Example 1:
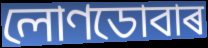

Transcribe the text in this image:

লোণডোবাৰ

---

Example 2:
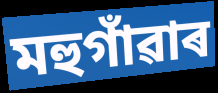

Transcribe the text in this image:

মহুগাঁৱাৰ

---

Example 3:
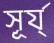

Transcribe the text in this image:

সূৰ্য্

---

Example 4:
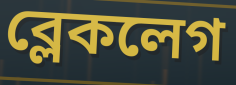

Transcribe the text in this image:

ব্লেকলেগ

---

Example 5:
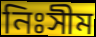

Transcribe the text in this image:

নিঃসীম